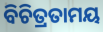
ବିଚିତ୍ରତାମୟ